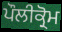
ਪੌਲੀਕ੍ਰੋਮ